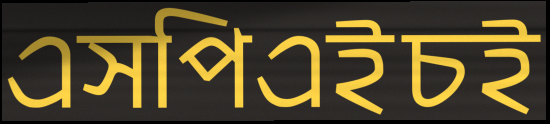
এসপিএইচই